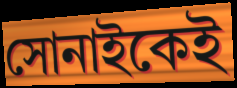
সোনাইকেই